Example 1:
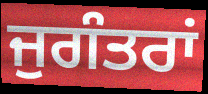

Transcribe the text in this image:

ਜੁਗੰਤਰਾਂ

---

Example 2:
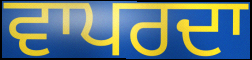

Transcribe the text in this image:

ਵਾਪਰਦਾ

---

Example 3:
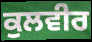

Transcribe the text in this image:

ਕੁਲਵੀਰ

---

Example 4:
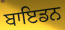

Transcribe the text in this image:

ਬਾਇਡਨ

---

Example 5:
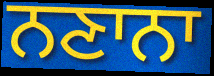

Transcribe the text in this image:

ਨਣਾਨਾ